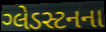
ગ્લેડસ્ટનના